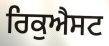
ਰਿਕੁਐਸਟ